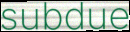
subdue